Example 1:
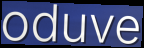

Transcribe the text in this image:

oduve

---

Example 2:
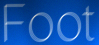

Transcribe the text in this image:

Foot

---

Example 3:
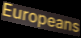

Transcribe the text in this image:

Europeans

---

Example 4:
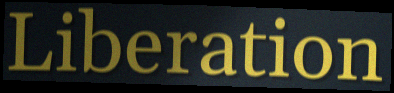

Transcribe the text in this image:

Liberation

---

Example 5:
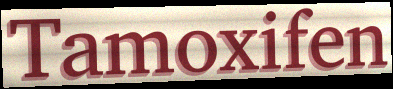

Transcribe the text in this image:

Tamoxifen